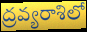
ద్రవ్యరాశిలో